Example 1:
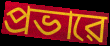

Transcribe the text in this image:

প্ৰভাৱে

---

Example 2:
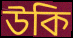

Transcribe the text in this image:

উকি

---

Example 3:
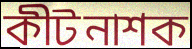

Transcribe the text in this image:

কীটনাশক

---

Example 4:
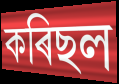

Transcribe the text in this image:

কৰিছল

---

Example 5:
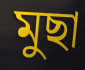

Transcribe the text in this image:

মুছা